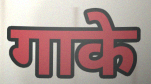
गाके